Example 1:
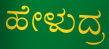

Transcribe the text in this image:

ಹೇಳುದ್ರ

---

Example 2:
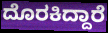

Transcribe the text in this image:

ದೊರಕಿದ್ದಾರೆ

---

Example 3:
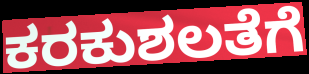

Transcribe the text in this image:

ಕರಕುಶಲತೆಗೆ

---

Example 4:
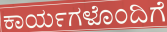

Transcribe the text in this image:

ಕಾರ್ಯಗಳೊಂದಿಗೆ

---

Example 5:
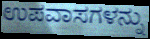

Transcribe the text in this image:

ಉಪವಾಸಗಳನ್ನು